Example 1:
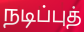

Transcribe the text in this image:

நடிப்புத்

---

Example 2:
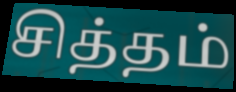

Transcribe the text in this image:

சித்தம்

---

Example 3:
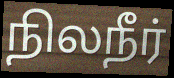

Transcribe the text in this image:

நிலநீர்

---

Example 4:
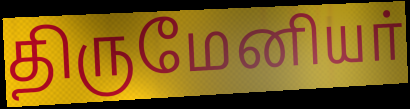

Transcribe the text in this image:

திருமேனியர்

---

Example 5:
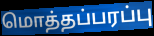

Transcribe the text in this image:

மொத்தப்பரப்பு